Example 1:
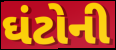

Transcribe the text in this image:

ઘંટોની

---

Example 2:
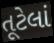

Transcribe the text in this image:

તૂટેલાં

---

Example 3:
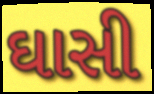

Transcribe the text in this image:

ઘાસી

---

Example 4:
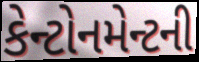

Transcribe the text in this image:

કેન્ટોનમેન્ટની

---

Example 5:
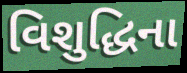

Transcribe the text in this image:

વિશુદ્ધિના